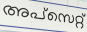
അപ്സെറ്റ്